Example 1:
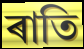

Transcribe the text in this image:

ৰাতি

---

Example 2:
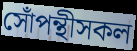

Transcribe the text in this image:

সোঁপন্থীসকল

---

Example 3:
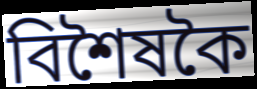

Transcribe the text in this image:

বিশৈষকৈ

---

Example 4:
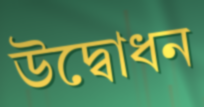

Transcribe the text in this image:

উদ্বোধন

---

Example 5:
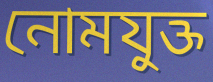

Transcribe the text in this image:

নোমযুক্ত